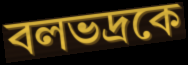
বলভদ্রকে